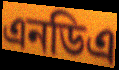
এনডিএ